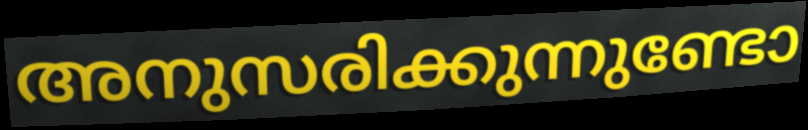
അനുസരിക്കുന്നുണ്ടോ